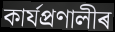
কাৰ্যপ্ৰণালীৰ